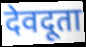
देवदूता